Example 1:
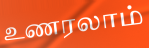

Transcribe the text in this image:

உணரலாம்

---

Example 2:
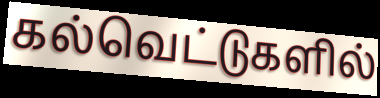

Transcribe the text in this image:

கல்வெட்டுகளில்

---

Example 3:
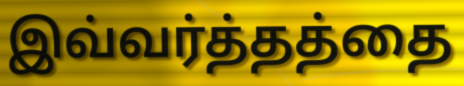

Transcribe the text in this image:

இவ்வர்த்தத்தை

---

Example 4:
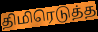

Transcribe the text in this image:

திமிரெடுத்த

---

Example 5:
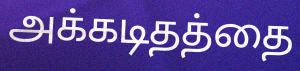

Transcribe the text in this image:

அக்கடிதத்தை